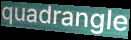
quadrangle